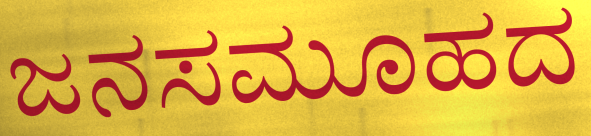
ಜನಸಮೂಹದ